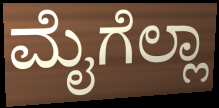
ಮೈಗೆಲ್ಲಾ